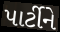
પાર્ટીને